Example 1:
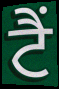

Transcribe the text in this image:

ਟੈੰ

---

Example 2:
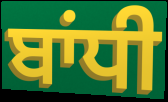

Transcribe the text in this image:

ਬਾਂਧੀ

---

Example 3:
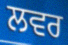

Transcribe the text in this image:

ਲਵਰ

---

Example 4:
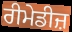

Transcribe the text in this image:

ਰੀਮੇਡੀਜ਼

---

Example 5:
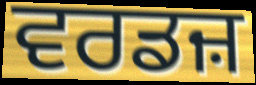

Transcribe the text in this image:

ਵਰਡਜ਼